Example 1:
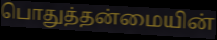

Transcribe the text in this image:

பொதுத்தன்மையின்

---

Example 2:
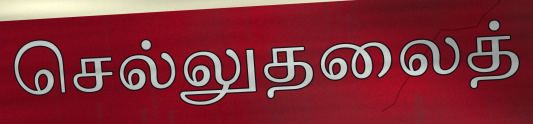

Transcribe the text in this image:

செல்லுதலைத்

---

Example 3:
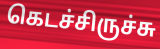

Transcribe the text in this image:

கெடச்சிருச்சு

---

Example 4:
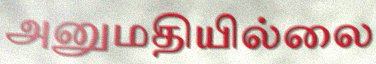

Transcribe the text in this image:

அனுமதியில்லை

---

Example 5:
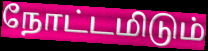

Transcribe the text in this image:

நோட்டமிடும்